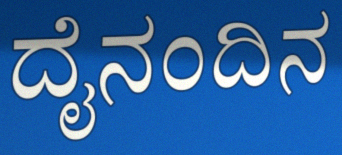
ದೈನಂದಿನ